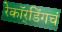
रेकॉर्डिंगचं